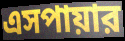
এসপায়ার